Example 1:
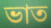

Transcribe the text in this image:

ভাত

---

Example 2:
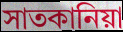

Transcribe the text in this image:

সাতকানিয়া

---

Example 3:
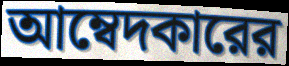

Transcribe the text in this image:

আম্বেদকারের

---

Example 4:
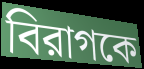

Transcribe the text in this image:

বিরাগকে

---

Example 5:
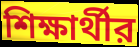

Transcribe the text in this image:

শিক্ষার্থীর